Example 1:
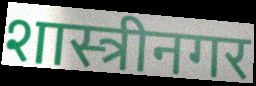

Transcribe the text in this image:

शास्त्रीनगर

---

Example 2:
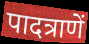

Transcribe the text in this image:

पादत्राणें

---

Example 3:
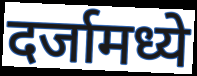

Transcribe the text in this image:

दर्जामध्ये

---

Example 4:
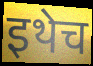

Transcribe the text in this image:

इथेच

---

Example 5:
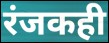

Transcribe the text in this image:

रंजकही